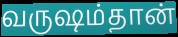
வருஷம்தான்